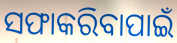
ସଫାକରିବାପାଇଁ